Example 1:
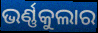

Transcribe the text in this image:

ଭର୍ଣ୍ଣକୁଲାର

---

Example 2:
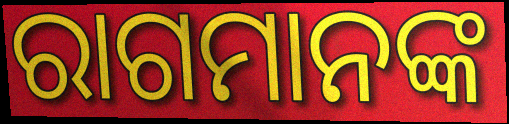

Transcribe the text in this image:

ରାଗମାନଙ୍କ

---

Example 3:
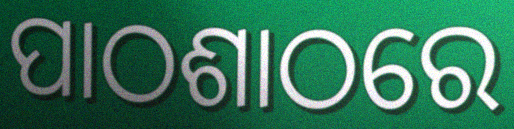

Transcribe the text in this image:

ପାଠଶାଠରେ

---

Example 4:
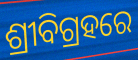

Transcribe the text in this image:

ଶ୍ରୀବିଗ୍ରହରେ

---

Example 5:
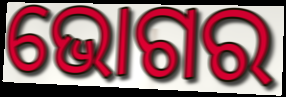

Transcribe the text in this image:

ଭୋଗର